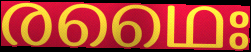
രഥൈഃ